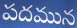
పదమున